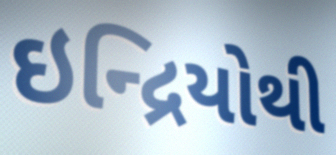
ઇન્દ્રિયોથી